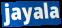
jayala